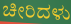
ಚೀರಿದಳು